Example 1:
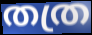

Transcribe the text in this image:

തത്ര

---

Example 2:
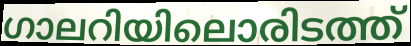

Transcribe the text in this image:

ഗാലറിയിലൊരിടത്ത്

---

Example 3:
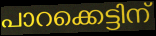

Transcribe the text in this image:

പാറക്കെട്ടിന്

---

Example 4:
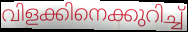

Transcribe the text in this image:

വിളക്കിനെക്കുറിച്ച്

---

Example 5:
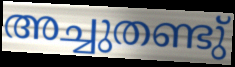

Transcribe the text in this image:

അച്ചുതണ്ടു്